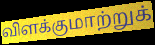
விளக்குமாற்றுக்